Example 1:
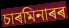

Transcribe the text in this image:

চাৰমিনাৰৰ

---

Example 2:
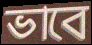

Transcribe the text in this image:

ভাবে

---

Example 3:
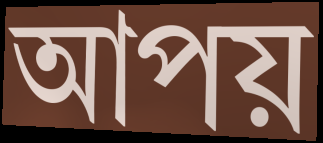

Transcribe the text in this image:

আপয়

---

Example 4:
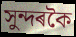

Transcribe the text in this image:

সুন্দৰকৈ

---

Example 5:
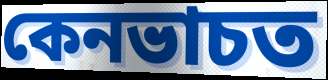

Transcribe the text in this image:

কেনভাচত